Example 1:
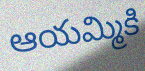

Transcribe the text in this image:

ఆయమ్మికి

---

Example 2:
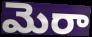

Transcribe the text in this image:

మెరా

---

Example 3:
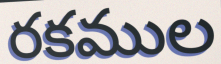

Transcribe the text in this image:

రకముల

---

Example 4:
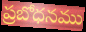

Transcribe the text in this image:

ప్రబోధనము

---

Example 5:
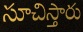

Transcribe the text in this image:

సూచిస్తారు